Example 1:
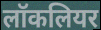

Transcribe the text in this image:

लॉकलियर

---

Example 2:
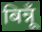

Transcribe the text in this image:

बिन्नूँ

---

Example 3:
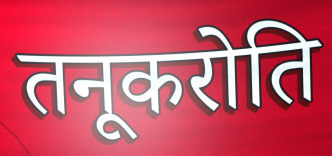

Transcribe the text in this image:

तनूकरोति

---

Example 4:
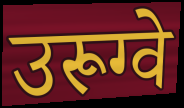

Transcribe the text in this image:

उरूग्वे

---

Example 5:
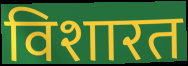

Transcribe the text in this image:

विशारत